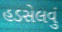
હડસેલવું